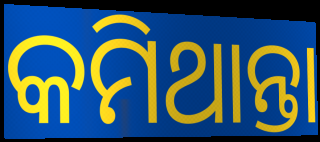
କମିଥାନ୍ତା